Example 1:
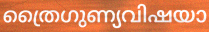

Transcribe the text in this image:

ത്രൈഗുണ്യവിഷയാ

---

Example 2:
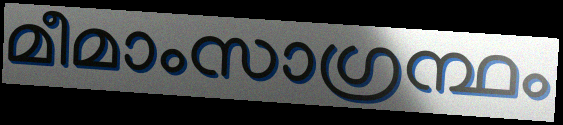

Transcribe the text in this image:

മീമാംസാഗ്രന്ഥം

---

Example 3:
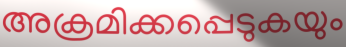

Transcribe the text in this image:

അക്രമിക്കപ്പെടുകയും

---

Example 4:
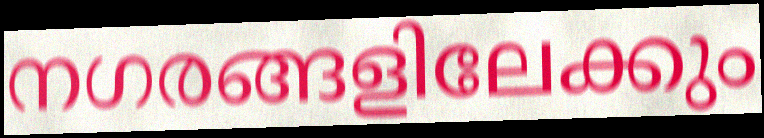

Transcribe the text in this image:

നഗരങ്ങളിലേക്കും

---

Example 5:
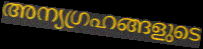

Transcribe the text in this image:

അന്യഗ്രഹങ്ങളുടെ